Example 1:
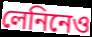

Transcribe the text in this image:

লেনিনেও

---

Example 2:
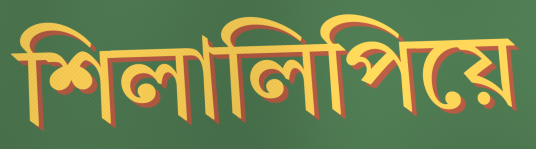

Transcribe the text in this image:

শিলালিপিয়ে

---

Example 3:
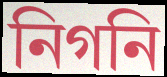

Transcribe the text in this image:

নিগনি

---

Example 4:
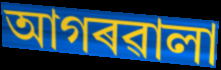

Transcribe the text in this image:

আগৰৱালা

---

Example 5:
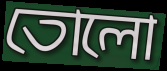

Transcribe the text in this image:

তোলো